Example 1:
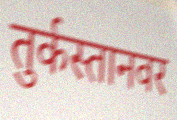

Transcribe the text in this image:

तुर्कस्तानवर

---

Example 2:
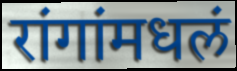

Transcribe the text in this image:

रांगांमधलं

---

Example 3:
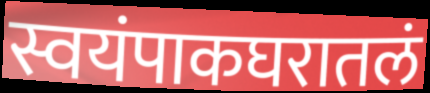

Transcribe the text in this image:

स्वयंपाकघरातलं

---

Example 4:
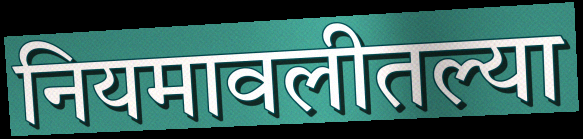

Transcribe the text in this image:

नियमावलीतल्या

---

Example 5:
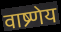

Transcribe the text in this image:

वाष्र्णेय